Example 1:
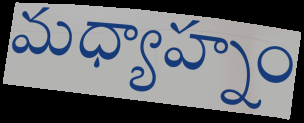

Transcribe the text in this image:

మధ్యాహ్నం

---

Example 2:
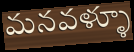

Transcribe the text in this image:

మనవళ్ళూ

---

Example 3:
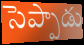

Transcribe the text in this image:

సెప్పాడు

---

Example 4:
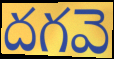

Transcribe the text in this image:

దగవె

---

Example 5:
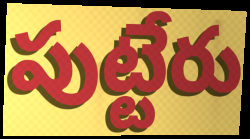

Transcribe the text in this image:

పుట్టేరు